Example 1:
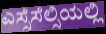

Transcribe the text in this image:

ಎಸ್ಸೆಸೆಲ್ಸಿಯಲ್ಲಿ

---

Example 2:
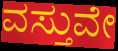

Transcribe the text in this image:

ವಸ್ತುವೇ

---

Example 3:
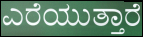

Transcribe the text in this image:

ಎರೆಯುತ್ತಾರೆ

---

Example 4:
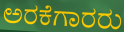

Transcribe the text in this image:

ಅರಕೆಗಾರರು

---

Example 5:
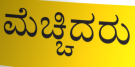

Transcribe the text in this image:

ಮೆಚ್ಚಿದರು